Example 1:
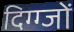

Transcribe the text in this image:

दिग्ग्जों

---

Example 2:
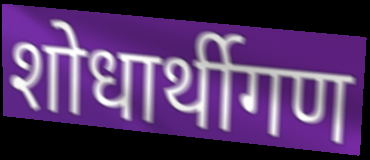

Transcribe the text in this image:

शोधार्थीगण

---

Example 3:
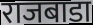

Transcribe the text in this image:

राजबाडा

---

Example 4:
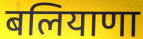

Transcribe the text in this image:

बलियाणा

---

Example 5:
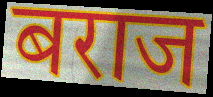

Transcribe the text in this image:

बराज